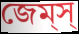
জেম্স্